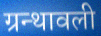
ग्रन्थावली